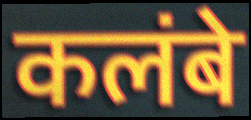
कलंबे